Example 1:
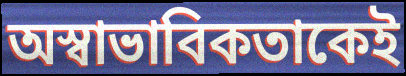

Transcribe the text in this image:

অস্বাভাবিকতাকেই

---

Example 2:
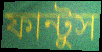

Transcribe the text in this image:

ফান্টুস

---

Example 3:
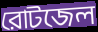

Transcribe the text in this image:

রোটজেল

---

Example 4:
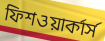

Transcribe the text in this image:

ফিশওয়ার্কার্স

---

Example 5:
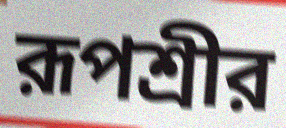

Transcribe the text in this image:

রূপশ্রীর